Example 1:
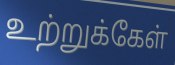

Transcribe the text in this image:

உற்றுக்கேள்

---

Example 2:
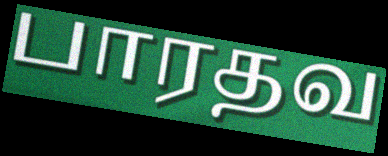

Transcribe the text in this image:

பாரதவ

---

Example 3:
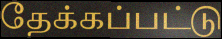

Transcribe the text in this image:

தேக்கப்பட்டு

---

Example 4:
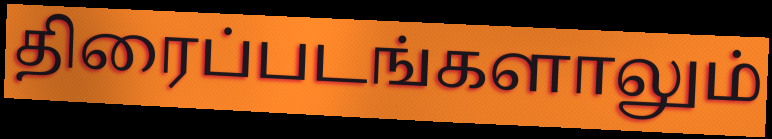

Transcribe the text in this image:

திரைப்படங்களாலும்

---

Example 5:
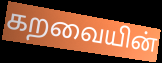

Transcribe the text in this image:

கறவையின்